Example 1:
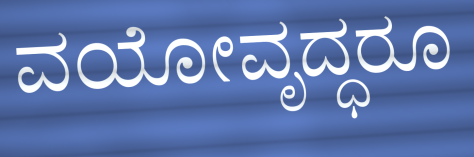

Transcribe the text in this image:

ವಯೋವೃದ್ಧರೂ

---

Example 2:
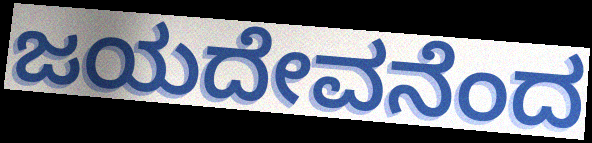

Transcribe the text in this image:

ಜಯದೇವನೆಂದ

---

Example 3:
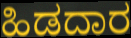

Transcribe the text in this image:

ಹಿಡದಾರ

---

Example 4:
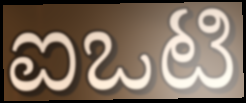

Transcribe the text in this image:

ಐಒಟಿ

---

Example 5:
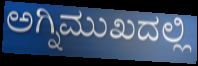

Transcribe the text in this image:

ಅಗ್ನಿಮುಖದಲ್ಲಿ